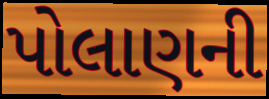
પોલાણની